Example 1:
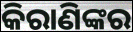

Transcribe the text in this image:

କିରାଣିଙ୍କର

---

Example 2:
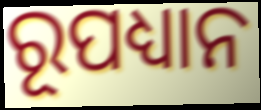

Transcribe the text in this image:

ରୂପଧ୍ୟାନ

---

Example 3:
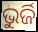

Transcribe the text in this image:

ଭୁର୍ଜି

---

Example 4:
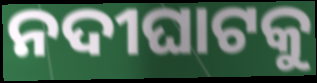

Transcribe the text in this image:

ନଦୀଘାଟକୁ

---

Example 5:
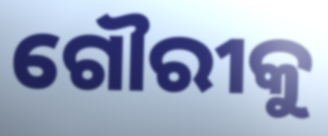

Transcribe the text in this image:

ଗୌରୀକୁ